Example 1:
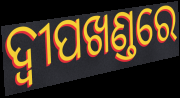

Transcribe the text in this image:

ଦ୍ଵୀପଖଣ୍ଡରେ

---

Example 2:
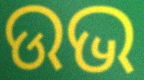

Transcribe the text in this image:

ଉଭ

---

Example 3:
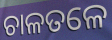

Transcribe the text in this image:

ଚାଳତଳେ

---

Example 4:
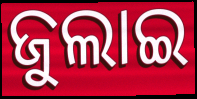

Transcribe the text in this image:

ଜୁଲାଇ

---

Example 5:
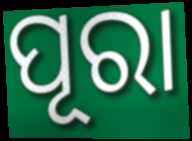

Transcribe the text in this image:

ପୂରା